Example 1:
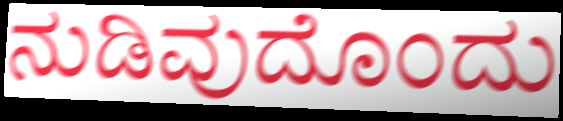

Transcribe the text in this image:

ನುಡಿವುದೊಂದು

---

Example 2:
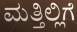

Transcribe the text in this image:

ಮತ್ತಿಲ್ಲಿಗೆ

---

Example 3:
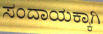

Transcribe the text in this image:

ಸಂದಾಯಕ್ಕಾಗಿ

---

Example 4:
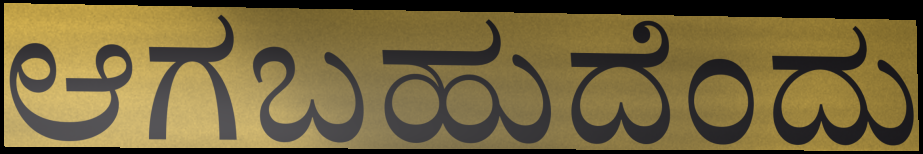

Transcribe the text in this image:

ಆಗಬಹುದೆಂದು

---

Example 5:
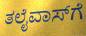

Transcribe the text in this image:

ತಲೈವಾಸ್‌ಗೆ